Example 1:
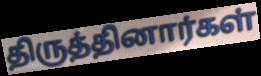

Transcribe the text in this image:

திருத்தினார்கள்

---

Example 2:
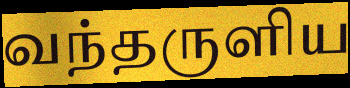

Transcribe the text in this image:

வந்தருளிய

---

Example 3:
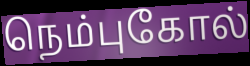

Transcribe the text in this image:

நெம்புகோல்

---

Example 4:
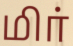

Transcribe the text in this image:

மிர்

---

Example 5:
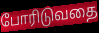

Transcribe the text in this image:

போரிடுவதை